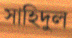
সাহিদুল